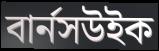
বার্নসউইক